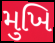
મુખિ